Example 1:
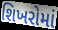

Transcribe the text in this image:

શિખરોમાં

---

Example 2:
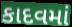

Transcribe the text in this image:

કાદવમાં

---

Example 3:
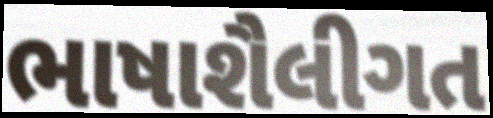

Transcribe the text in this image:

ભાષાશૈલીગત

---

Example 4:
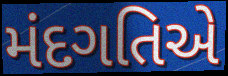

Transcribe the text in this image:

મંદગતિએ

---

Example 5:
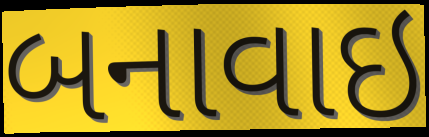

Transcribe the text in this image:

બનાવાઇ